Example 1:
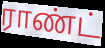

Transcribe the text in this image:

ராண்ட்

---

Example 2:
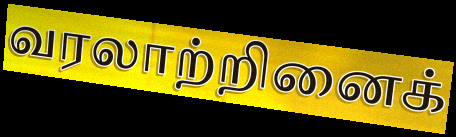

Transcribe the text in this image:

வரலாற்றினைக்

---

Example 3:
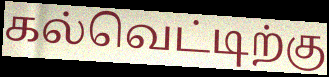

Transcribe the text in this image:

கல்வெட்டிற்கு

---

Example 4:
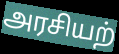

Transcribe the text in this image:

அரசியற்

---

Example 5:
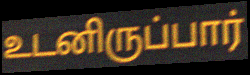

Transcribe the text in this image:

உடனிருப்பார்